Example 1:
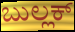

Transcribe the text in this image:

ಬುಲ್ಲಕ್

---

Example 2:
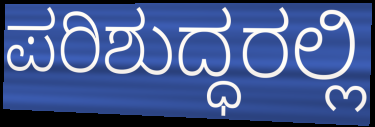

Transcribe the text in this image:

ಪರಿಶುದ್ಧರಲ್ಲಿ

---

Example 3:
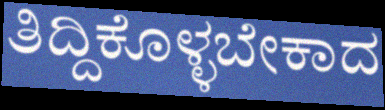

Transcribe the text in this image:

ತಿದ್ದಿಕೊಳ್ಳಬೇಕಾದ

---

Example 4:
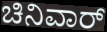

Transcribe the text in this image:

ಚಿನಿವಾರ್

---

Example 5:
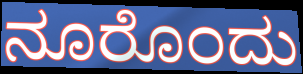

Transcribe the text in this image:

ನೂರೊಂದು